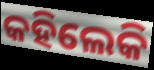
କହିଲେକି